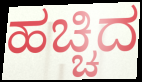
ಹಚ್ಚಿದ